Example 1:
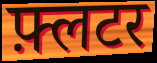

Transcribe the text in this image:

फ़्लटर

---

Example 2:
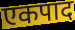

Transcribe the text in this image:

एकपाद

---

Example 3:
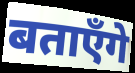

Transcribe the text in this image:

बताएँगे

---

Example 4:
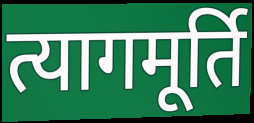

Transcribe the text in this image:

त्यागमूर्ति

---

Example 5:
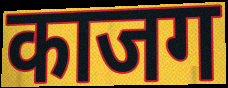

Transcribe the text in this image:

काजग